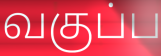
வகுப்ப